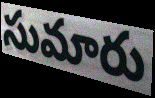
సుమారు